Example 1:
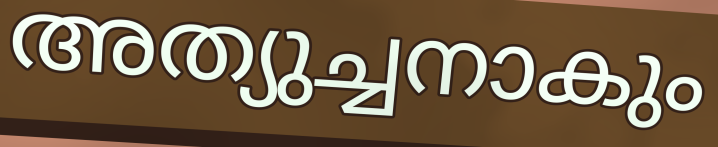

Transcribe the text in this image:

അത്യുച്ചനാകും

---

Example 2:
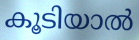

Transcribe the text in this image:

കൂടിയാൽ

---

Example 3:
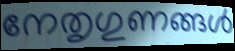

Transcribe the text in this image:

നേതൃഗുണങ്ങൾ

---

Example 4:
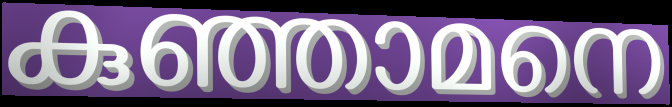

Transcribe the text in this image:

കുഞ്ഞാമനെ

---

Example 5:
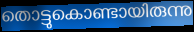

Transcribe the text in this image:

തൊട്ടുകൊണ്ടായിരുന്നു